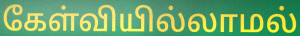
கேள்வியில்லாமல்